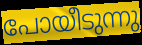
പോയീടുന്നു